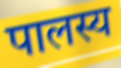
पालस्य